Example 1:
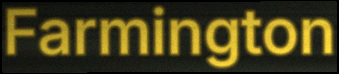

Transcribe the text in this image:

Farmington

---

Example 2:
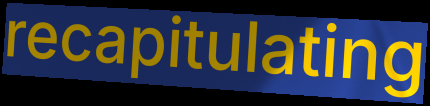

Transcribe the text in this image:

recapitulating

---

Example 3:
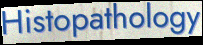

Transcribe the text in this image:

Histopathology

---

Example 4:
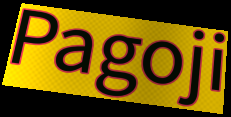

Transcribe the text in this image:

Pagoji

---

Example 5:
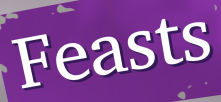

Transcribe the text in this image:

Feasts